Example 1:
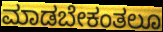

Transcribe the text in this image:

ಮಾಡಬೇಕಂತಲೂ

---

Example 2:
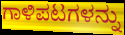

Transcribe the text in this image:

ಗಾಳಿಪಟಗಳನ್ನು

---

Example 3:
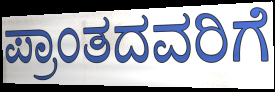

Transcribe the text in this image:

ಪ್ರಾಂತದವರಿಗೆ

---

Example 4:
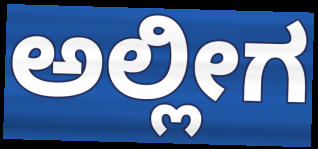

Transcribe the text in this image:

ಅಲ್ಲೀಗ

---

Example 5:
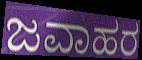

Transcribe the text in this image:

ಜವಾಹರ